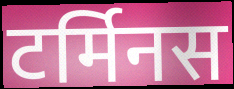
टर्मिनस